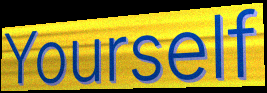
Yourself